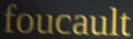
foucault